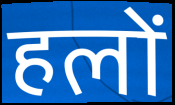
हलों